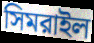
সিমরাইল